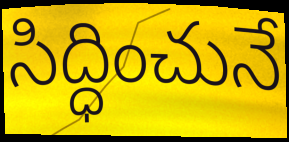
సిద్ధించునే